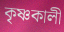
কৃষ্ণকালী